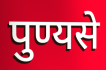
पुण्यसे